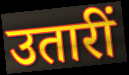
उतारीं